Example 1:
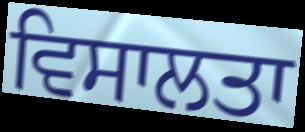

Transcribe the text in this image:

ਵਿਸਾਲਤਾ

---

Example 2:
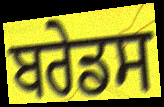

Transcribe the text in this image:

ਬਰੇਡਸ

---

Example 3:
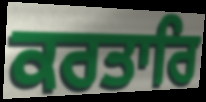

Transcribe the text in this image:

ਕਰਤਾਰਿ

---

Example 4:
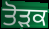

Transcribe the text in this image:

ਤੋੜਕ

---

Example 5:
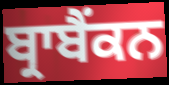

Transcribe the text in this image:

ਬ੍ਰਾਬੈਂਕਨ